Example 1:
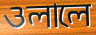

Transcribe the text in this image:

ওলালে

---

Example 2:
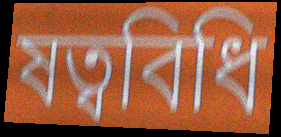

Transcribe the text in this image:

ষত্ববিধি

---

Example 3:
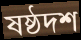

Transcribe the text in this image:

ষষ্ঠদশ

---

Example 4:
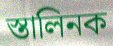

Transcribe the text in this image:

স্তালিনক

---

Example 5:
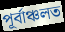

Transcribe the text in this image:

পূৰ্বাঞ্চলত